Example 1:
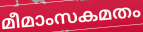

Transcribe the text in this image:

മീമാംസകമതം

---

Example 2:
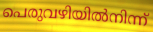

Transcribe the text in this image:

പെരുവഴിയിൽനിന്ന്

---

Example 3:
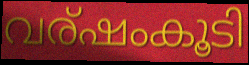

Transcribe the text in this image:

വര്ഷംകൂടി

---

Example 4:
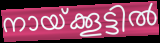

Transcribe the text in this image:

നായ്‌ക്കൂട്ടിൽ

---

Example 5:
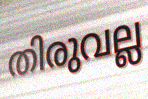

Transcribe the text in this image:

തിരുവല്ല